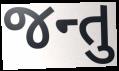
જન્તુ